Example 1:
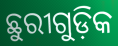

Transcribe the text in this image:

ଛୁରୀଗୁଡ଼ିକ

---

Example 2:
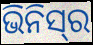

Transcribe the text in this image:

ଭିନିସ୍‌ର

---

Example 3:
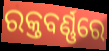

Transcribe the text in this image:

ରକ୍ତବର୍ଣ୍ଣରେ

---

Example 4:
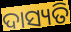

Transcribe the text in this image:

ଦାସ୍ୟତି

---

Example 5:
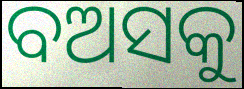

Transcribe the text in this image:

ବଅସକୁ